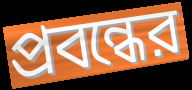
প্রবন্ধের